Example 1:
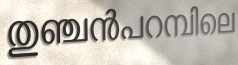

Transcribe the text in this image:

തുഞ്ചൻപറമ്പിലെ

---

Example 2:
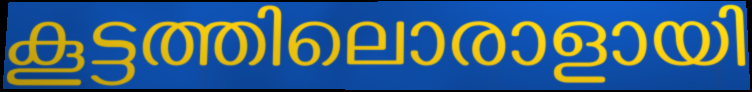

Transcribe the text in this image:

കൂട്ടത്തിലൊരാളായി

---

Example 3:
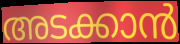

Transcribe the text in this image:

അടക്കാൻ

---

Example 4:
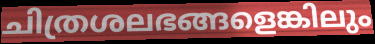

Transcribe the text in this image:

ചിത്രശലഭങ്ങളെങ്കിലും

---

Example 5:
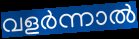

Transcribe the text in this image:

വളർന്നാൽ